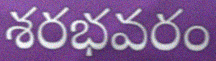
శరభవరం